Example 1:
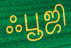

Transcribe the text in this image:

ஃபூஜி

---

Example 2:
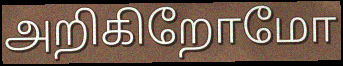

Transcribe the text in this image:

அறிகிறோமோ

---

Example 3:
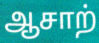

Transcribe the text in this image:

ஆசாற்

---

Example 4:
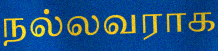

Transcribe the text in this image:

நல்லவராக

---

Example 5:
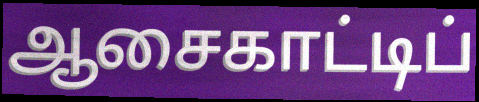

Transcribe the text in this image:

ஆசைகாட்டிப்